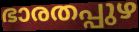
ഭാരതപ്പുഴ